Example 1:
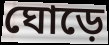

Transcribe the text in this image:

ঘোড়ে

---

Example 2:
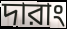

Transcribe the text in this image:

দারাং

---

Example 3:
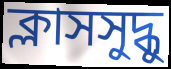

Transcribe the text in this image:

ক্লাসসুদ্ধু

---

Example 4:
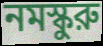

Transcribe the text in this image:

নমস্কুরু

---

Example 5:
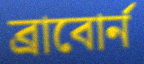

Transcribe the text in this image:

ব্রাবোর্ন